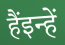
हैंइन्हें